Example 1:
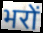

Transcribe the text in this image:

भरों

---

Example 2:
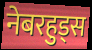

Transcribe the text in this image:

नेबरहुड्स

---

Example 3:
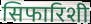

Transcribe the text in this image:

सिफारिशी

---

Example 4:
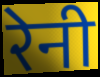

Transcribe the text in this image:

रेनी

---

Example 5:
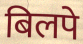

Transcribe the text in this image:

बिलपे